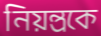
নিয়ন্ত্রকে